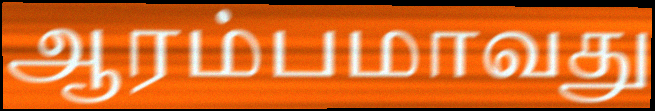
ஆரம்பமாவது